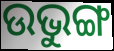
ଉଭୁଙ୍ଗ